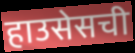
हाउसेसची